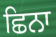
ਛਿਨਾ